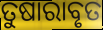
ତୁଷାରାବୃତ